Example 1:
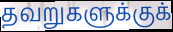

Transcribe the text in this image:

தவறுகளுக்குக்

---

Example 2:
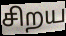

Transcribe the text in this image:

சிறய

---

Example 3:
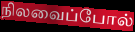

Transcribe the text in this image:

நிலவைப்போல்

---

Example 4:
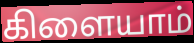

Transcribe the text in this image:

கிளையாம்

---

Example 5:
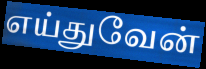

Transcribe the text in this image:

எய்துவேன்